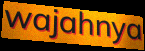
wajahnya